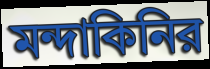
মন্দাকিনির